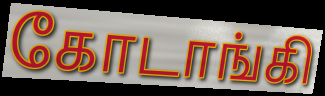
கோடாங்கி